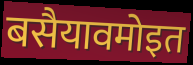
बसैयावमोइत